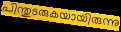
പിന്തുടരുകയായിരുന്നു